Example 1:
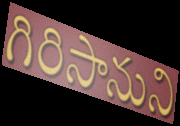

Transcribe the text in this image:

గిరిసానుని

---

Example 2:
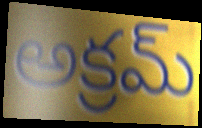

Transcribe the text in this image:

అక్రమ్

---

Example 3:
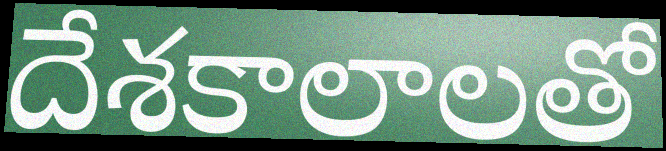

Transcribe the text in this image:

దేశకాలాలతో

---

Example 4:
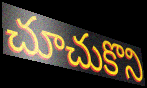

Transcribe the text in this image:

చూచుకొని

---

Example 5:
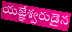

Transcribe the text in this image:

యజ్ఞేశ్వరుడైన